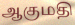
ஆகுமதி